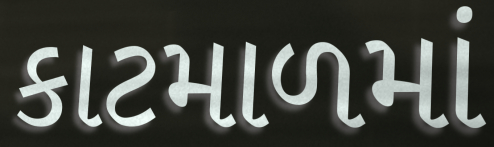
કાટમાળમાં